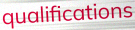
qualifications